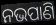
ନଭପାଣି